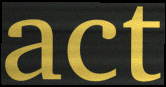
act